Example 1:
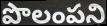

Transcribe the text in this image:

పొలంపని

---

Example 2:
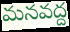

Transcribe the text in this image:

మనవద్ద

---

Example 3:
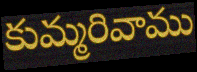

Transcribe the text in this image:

కుమ్మరివాము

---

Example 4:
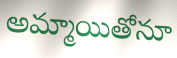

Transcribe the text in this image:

అమ్మాయితోనూ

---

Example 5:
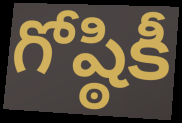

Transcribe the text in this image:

గోష్ఠికీ